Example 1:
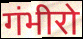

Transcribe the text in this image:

गंभीरो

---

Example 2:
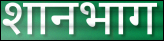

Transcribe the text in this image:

शानभाग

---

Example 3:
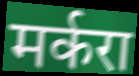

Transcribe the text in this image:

मर्करा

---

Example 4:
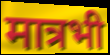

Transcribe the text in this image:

मात्रभी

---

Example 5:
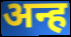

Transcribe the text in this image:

अन्ह